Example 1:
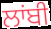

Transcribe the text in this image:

ਲਾਂਬੀ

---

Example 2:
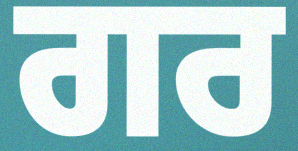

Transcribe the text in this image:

ਗਰ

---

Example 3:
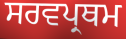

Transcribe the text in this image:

ਸਰਵਪ੍ਰਥਮ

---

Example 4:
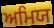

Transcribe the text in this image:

ਅਮਿਯ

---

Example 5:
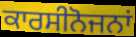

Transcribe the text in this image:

ਕਾਰਸੀਨੋਜਨਾਂ